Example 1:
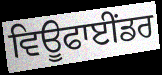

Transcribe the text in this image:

ਵਿਊਫਾਈਂਡਰ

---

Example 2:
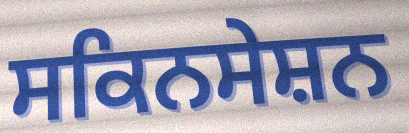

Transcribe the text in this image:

ਸਕਿਨਸੇਸ਼ਨ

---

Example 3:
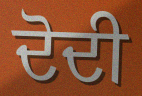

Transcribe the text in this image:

ਦੋਦੀ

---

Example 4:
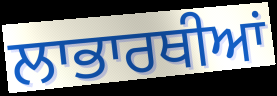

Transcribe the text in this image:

ਲਾਭਾਰਥੀਆਂ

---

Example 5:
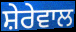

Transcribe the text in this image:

ਸ਼ੇਰੇਵਾਲ